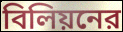
বিলিয়নের